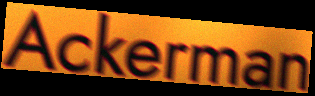
Ackerman